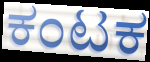
ಕಂಟಕ